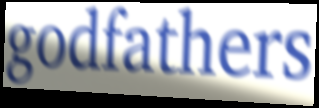
godfathers